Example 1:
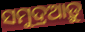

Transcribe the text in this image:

ସମୁଦ୍ରଆଡ଼ୁ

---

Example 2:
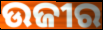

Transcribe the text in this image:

ଉଜୀର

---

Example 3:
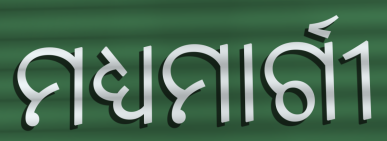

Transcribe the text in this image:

ମଧ୍ୟମାର୍ଗୀ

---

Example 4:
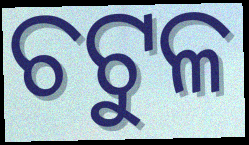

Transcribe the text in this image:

ଚଟୁଳ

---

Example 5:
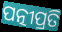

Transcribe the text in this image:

ପତ୍ନୀପ୍ରତି